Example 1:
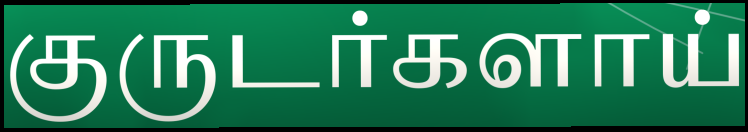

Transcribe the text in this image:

குருடர்களாய்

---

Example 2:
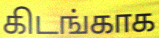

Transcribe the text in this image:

கிடங்காக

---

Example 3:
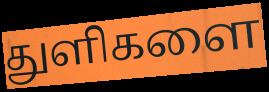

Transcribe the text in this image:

துளிகளை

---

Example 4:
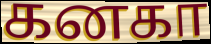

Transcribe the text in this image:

கனகா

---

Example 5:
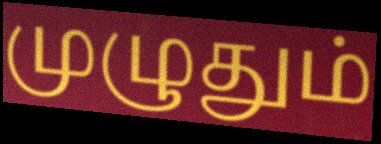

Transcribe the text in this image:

முழுதும்